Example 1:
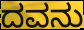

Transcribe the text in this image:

ದವನು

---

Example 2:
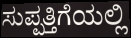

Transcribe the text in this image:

ಸುಪ್ಪತ್ತಿಗೆಯಲ್ಲಿ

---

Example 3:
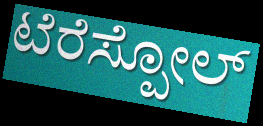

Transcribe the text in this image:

ಟೆರೆಸ್ಪೋಲ್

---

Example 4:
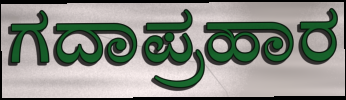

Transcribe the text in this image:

ಗದಾಪ್ರಹಾರ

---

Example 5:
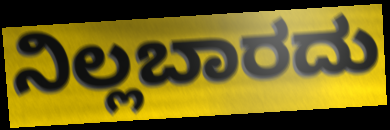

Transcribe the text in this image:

ನಿಲ್ಲಬಾರದು